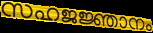
സഹജജ്ഞാനം